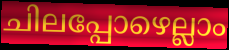
ചിലപ്പോഴെല്ലാം